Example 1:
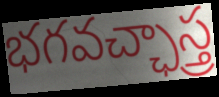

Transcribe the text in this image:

భగవచ్ఛాస్త్ర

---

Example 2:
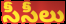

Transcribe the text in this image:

సీసీలు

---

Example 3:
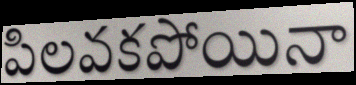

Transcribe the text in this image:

పిలవకపోయినా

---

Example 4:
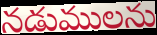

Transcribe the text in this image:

నడుములను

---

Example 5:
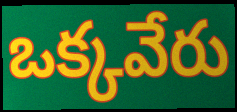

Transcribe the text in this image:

ఒక్కవేరు